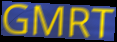
GMRT